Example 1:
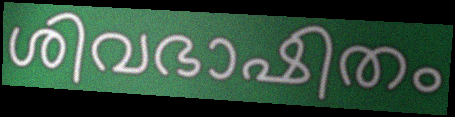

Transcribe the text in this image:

ശിവഭാഷിതം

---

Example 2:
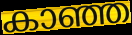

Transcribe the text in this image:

കാഞ്ഞ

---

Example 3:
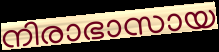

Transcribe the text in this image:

നിരാഭാസായ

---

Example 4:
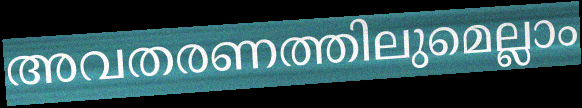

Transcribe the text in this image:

അവതരണത്തിലുമെല്ലാം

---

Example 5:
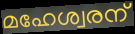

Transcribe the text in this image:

മഹേശ്വരന്